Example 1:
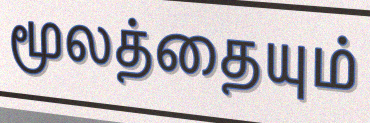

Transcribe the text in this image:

மூலத்தையும்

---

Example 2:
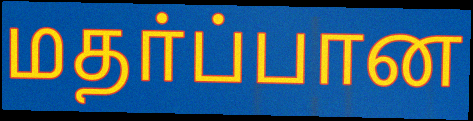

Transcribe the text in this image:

மதர்ப்பான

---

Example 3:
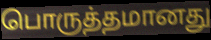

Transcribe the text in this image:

பொருத்தமானது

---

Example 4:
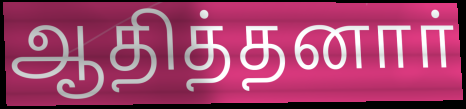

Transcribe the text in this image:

ஆதித்தனார்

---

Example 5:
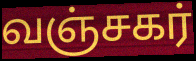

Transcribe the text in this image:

வஞ்சகர்